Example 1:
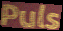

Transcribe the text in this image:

Puls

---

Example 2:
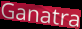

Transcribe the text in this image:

Ganatra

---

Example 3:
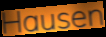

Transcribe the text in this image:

Hausen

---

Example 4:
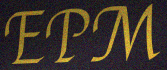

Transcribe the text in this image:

EPM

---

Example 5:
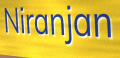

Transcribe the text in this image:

Niranjan